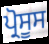
ਪ੍ਰੋਸੂਸ